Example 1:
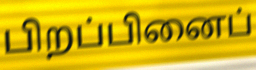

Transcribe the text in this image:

பிறப்பினைப்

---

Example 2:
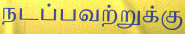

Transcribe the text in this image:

நடப்பவற்றுக்கு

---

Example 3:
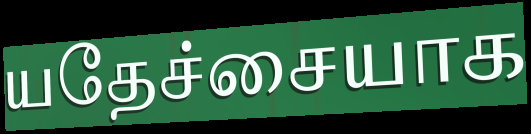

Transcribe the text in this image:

யதேச்சையாக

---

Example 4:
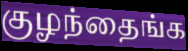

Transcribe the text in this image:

குழந்தைங்க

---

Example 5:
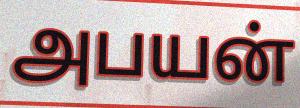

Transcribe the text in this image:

அபயன்